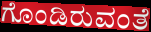
ಗೊಂಡಿರುವಂತೆ